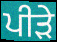
ਪੀੜੇ